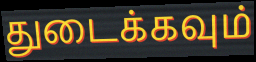
துடைக்கவும்